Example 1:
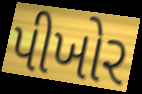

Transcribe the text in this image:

પીખોર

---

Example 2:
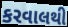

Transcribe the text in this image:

કરવાલથી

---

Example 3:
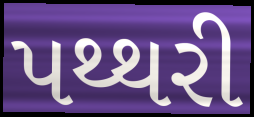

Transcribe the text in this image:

પથ્થરી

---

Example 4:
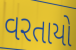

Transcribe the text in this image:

વરતાયો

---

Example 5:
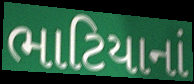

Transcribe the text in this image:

ભાટિયાનાં